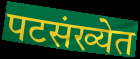
पटसंख्येत